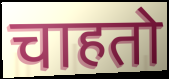
चाहतो